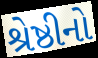
શ્રેષ્ઠીનો